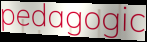
pedagogic